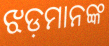
ଝଡ଼ମାନଙ୍କ